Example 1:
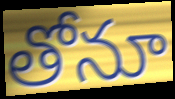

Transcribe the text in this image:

తోనూ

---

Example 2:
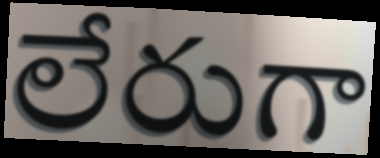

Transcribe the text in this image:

లేరుగా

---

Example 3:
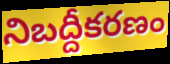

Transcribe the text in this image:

నిబద్దీకరణం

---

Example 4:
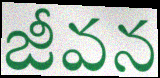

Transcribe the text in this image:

జీవన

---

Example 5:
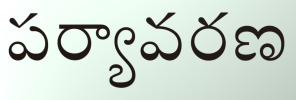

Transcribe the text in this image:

పర్యావరణ